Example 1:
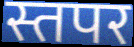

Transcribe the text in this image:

स्तपर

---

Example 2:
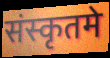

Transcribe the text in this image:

संस्कृतमे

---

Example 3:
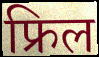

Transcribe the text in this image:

फ्रिल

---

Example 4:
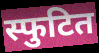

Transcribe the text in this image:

स्फुटित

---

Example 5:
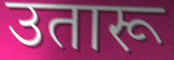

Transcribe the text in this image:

उतारू